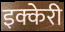
इक्केरी